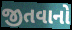
જીતવાનો